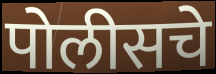
पोलीसचे